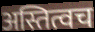
अस्तित्वच